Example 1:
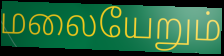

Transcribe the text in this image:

மலையேறும்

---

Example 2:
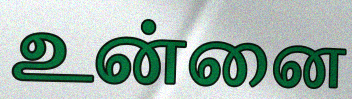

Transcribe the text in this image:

உன்னை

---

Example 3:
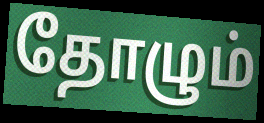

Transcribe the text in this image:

தோழும்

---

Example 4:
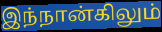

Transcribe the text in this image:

இந்நான்கிலும்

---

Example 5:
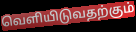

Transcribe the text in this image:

வெளியிடுவதற்கும்